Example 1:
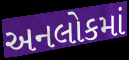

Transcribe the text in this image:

અનલોકમાં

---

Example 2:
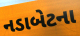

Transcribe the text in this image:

નડાબેટના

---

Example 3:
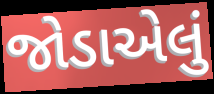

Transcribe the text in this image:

જોડાએલું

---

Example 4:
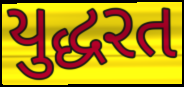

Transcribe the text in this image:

યુદ્ધરત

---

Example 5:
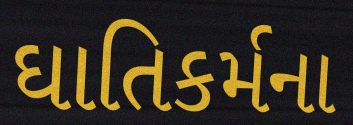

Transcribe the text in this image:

ઘાતિકર્મના